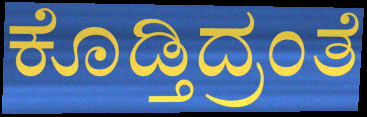
ಕೊಡ್ತಿದ್ರಂತೆ